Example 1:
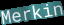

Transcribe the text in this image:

Merkin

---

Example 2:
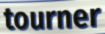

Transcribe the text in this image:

tourner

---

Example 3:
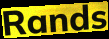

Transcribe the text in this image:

Rands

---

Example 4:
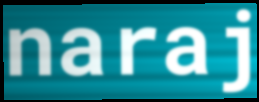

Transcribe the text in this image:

naraj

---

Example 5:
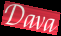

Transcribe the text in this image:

Dava